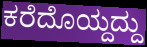
ಕರೆದೊಯ್ದದ್ದು